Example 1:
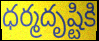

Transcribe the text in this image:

ధర్మదృష్టికి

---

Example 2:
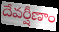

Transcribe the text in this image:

దేవర్షీణాం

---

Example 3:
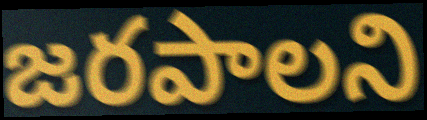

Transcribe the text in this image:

జరపాలని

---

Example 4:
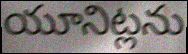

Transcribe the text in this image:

యూనిట్లను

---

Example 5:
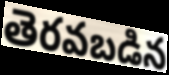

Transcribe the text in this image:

తెరవబడిన